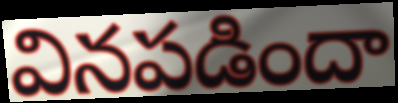
వినపడిందా